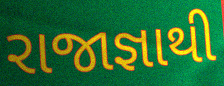
રાજાજ્ઞાથી